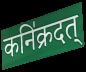
कनि॑क्रदत्